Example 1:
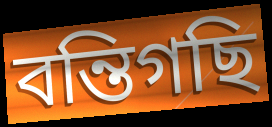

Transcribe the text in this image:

বন্তিগছি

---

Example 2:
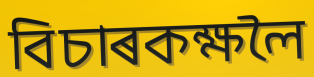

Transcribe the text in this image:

বিচাৰকক্ষলৈ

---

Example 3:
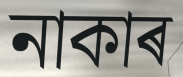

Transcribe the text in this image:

নাকাৰ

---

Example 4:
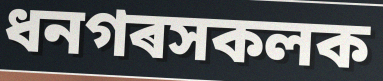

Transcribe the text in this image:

ধনগৰসকলক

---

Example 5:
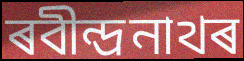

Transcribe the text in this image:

ৰবীন্দ্ৰনাথৰ